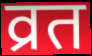
व्रत